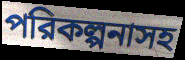
পরিকল্পনাসহ